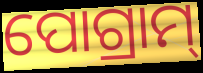
ପୋଗ୍ରାମ୍